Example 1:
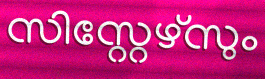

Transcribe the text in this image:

സിസ്റ്റേഴ്സും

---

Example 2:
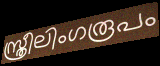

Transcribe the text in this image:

സ്ത്രീലിംഗരൂപം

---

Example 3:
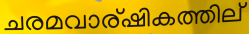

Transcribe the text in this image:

ചരമവാര്ഷികത്തില്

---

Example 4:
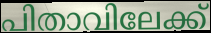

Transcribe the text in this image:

പിതാവിലേക്ക്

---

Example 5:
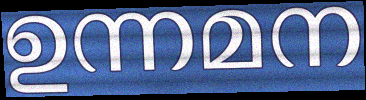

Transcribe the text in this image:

ഉന്നമന